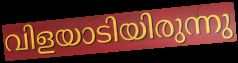
വിളയാടിയിരുന്നു